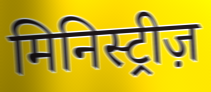
मिनिस्ट्रीज़